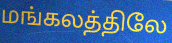
மங்கலத்திலே